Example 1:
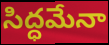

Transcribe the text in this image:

సిద్ధమేనా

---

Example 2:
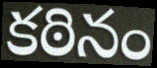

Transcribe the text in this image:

కఠినం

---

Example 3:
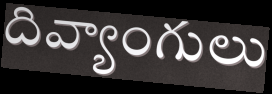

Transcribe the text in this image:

దివ్యాంగులు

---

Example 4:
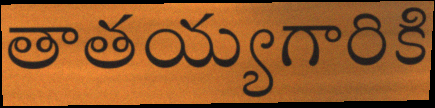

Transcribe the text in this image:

తాతయ్యగారికి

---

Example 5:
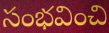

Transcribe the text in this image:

సంభవించి